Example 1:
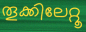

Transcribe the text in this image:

തൂക്കിലേറ്റൂ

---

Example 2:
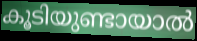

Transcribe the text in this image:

കൂടിയുണ്ടായാൽ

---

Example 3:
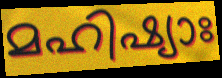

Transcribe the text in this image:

മഹിഷ്യാഃ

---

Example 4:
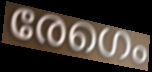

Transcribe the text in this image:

രേഗെം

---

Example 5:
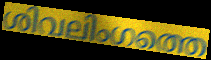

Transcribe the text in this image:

ശിവലിംഗത്തെ